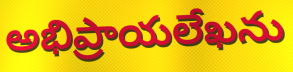
అభిప్రాయలేఖను